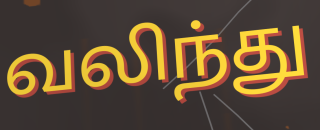
வலிந்து